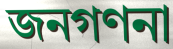
জনগণনা